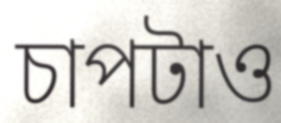
চাপটাও